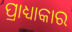
ପ୍ରାଧ୍ୟାକାର